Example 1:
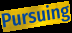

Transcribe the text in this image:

Pursuing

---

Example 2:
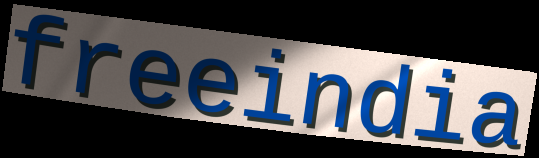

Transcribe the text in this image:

freeindia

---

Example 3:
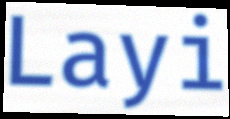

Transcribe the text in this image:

Layi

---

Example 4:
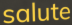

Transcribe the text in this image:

salute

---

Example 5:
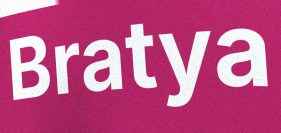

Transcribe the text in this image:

Bratya